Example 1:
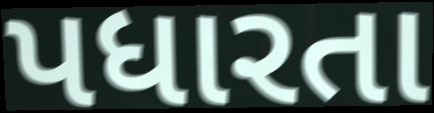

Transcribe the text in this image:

પધારતા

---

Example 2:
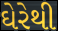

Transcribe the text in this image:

ઘેરેથી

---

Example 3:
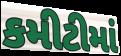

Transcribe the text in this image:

કમીટીમાં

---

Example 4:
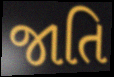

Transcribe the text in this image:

જાતિ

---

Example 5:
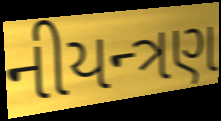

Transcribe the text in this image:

નીયન્ત્રણ